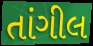
તાંગીલ